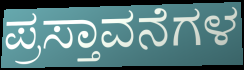
ಪ್ರಸ್ತಾವನೆಗಳ